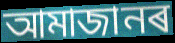
আমাজানৰ